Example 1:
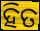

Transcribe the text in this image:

ହିତ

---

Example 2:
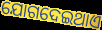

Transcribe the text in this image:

ଯୋଗଦେଇଥାଏ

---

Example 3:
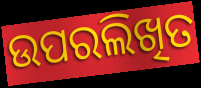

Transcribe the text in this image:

ଉପରଲିଖିତ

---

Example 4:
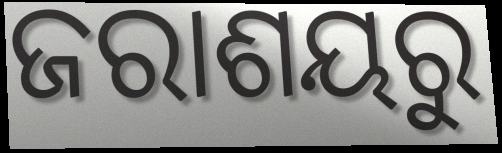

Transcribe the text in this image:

ଜରାଶୟରୁ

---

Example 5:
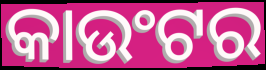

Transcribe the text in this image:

କାଉଂଟର